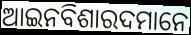
ଆଇନବିଶାରଦମାନେ